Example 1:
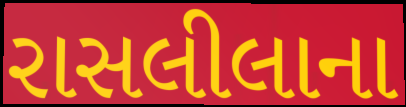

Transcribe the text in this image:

રાસલીલાના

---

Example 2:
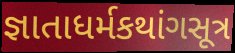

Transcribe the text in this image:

જ્ઞાતાધર્મકથાંગસૂત્ર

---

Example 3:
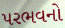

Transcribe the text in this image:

પરભવનો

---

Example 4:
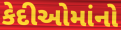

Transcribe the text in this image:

કેદીઓમાંનો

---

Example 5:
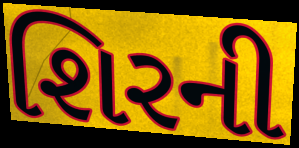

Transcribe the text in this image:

શિરની